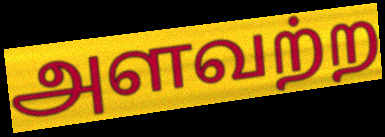
அளவற்ற